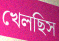
খেলছিস